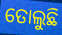
ତୋଲୁଛି